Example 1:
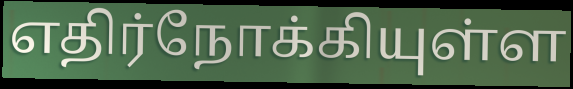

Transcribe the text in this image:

எதிர்நோக்கியுள்ள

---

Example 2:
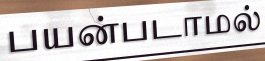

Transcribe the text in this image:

பயன்படாமல்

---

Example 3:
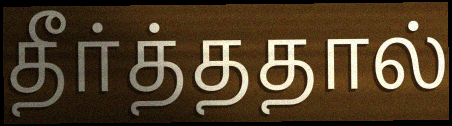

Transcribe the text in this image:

தீர்த்ததால்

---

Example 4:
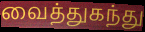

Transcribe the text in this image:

வைத்துகந்து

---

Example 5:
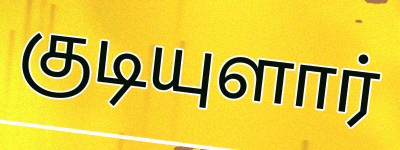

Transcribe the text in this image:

குடியுளார்